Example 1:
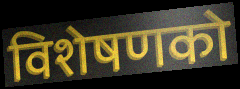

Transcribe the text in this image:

विशेषणको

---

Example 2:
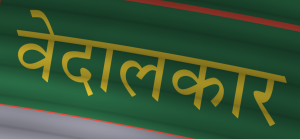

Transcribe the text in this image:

वेदालकार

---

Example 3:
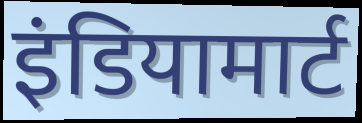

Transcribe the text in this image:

इंडियामार्ट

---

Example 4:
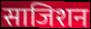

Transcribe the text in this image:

साजिशन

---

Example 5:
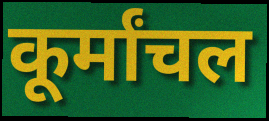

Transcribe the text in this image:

कूर्मांचल